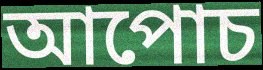
আপোচ